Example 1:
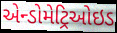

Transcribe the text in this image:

એન્ડોમેટ્રિઓઇડ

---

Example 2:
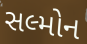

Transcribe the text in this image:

સલ્મોન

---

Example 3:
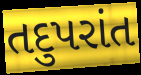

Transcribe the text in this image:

તદુપરાંત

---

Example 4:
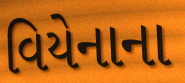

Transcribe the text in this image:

વિયેનાના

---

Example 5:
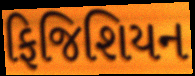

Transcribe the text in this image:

ફિજિશિયન